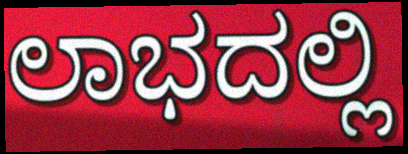
ಲಾಭದಲ್ಲಿ